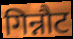
गिन्नौट